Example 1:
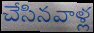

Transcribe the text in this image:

చేసినవాళ్ల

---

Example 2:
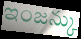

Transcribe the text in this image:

ఇంజన్కు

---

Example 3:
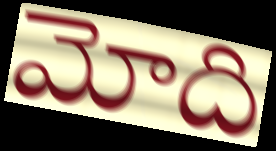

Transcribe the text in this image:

మోది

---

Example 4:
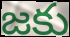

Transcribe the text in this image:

జకు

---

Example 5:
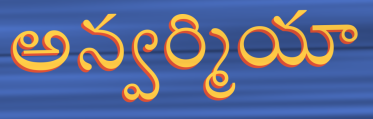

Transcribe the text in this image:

అన్వర్మియా